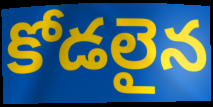
కోడలైన